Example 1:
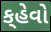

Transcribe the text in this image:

ક્‌હેવો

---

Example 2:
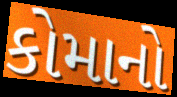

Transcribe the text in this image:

કોમાનો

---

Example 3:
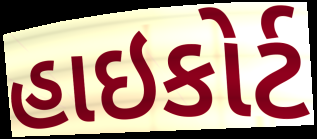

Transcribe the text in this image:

હાઇકોર્ટ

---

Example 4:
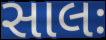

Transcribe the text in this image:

સાલઃ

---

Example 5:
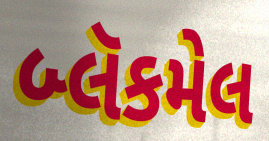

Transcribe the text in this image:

બ્લૅકમેલ